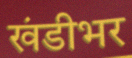
खंडीभर